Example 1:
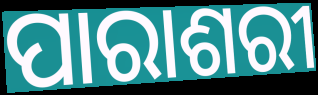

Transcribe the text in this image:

ପାରାଶରୀ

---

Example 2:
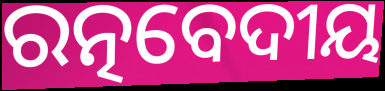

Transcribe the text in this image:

ରତ୍ନବେଦୀୟ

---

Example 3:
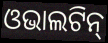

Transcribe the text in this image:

ଓଭାଲଟିନ୍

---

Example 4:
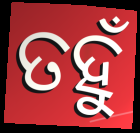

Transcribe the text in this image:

ତହୁଁ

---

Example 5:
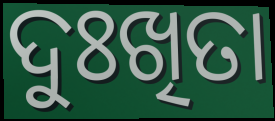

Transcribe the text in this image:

ଦୁଃଖିତା